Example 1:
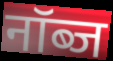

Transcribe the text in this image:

नॉब्ज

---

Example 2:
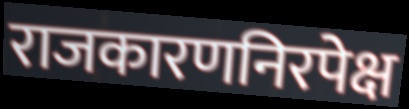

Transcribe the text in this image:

राजकारणनिरपेक्ष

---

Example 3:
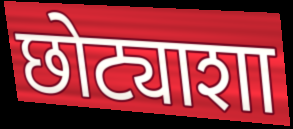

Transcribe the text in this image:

छोट्याशा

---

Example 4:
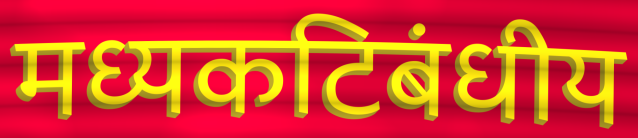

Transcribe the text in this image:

मध्यकटिबंधीय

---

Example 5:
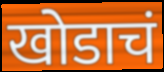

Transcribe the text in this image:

खोडाचं